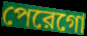
পেরেগো